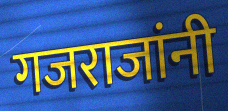
गजराजांनी